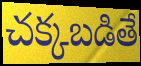
చక్కబడితే